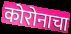
कोरोनाचा